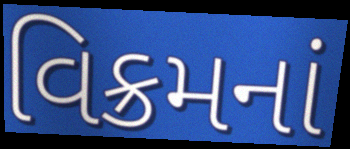
વિક્રમનાં